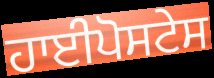
ਹਾਈਪੋਸਟੇਸ